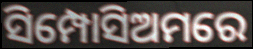
ସିମ୍ପୋସିଅମରେ